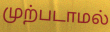
முற்படாமல்